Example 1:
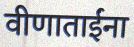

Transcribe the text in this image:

वीणाताईंना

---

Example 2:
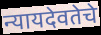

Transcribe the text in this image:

न्यायदेवतेचे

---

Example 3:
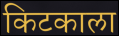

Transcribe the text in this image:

किटकाला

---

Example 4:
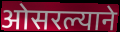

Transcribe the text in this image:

ओसरल्याने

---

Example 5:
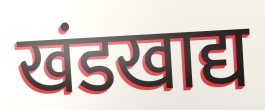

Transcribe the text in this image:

खंडखाद्य